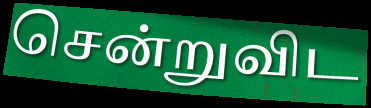
சென்றுவிட